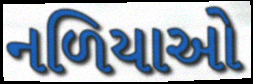
નળિયાઓ